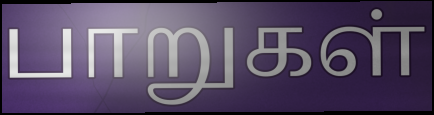
பாறுகள்